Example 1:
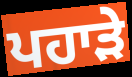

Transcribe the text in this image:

ਪਹਾੜੇ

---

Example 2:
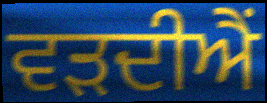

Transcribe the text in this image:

ਵੜਦੀਐਂ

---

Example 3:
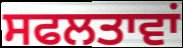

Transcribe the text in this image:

ਸਫਲਤਾਵਾਂ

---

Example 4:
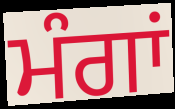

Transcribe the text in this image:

ਮੰਗਾਂ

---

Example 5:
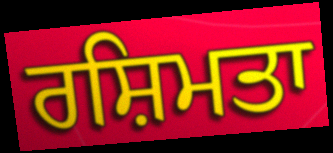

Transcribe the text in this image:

ਰਸ਼ਿਮਤਾ